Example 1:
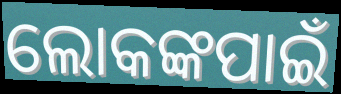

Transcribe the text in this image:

ଲୋକଙ୍କପାଇଁ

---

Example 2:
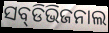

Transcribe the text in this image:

ସବ୍‌ଡିଭିଜନାଲ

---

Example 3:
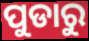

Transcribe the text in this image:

ପୁଡାରୁ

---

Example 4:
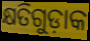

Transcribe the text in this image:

କ୍ଷତିଗୁଡ଼ାକ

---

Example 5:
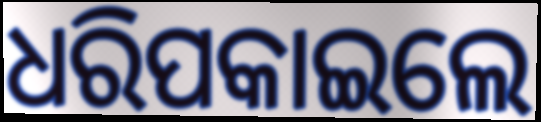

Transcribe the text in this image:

ଧରିପକାଇଲେ